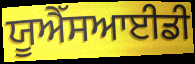
ਯੂਐੱਸਆਈਡੀ